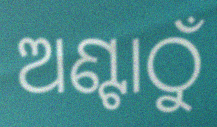
ଅଣ୍ଟାଠୁଁ